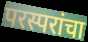
परस्परांचा